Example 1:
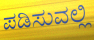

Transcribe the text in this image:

ಪಡಿಸುವಲ್ಲಿ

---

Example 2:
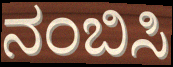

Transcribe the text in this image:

ನಂಬಿಸಿ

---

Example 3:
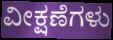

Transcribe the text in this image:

ವೀಕ್ಷಣೆಗಳು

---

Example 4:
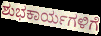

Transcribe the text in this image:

ಶುಭಕಾರ್ಯಗಳಿಗೆ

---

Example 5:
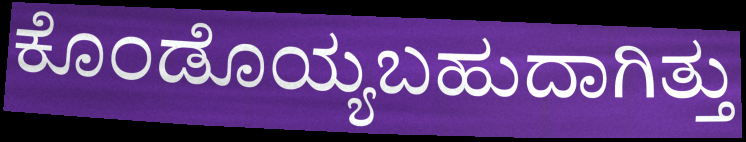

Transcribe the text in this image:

ಕೊಂಡೊಯ್ಯಬಹುದಾಗಿತ್ತು